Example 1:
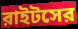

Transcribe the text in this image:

রাইটসের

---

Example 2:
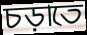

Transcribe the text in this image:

চড়াতে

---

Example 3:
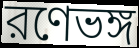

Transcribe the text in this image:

রণেভঙ্গ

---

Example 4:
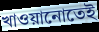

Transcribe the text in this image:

খাওয়ানোতেই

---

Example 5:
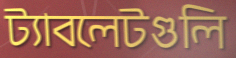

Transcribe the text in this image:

ট্যাবলেটগুলি